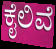
ಕೈಲಿವೆ